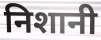
निशानी